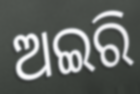
ଅଇରି